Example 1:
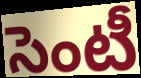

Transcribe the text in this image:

సెంటీ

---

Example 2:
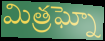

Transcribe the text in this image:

మిత్రఘ్నో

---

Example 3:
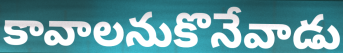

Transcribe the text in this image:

కావాలనుకొనేవాడు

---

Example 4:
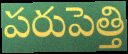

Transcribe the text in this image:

పరుపెత్తి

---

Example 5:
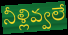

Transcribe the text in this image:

నీళ్లివ్వలే